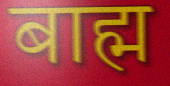
बाह्म